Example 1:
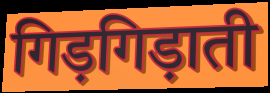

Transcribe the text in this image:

गिड़गिड़ाती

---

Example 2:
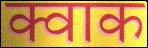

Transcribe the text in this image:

क्वाक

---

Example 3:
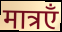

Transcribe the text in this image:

मात्रएँ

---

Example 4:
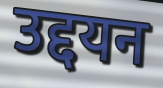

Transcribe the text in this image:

उद्दयन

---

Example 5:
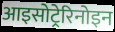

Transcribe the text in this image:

आइसोट्रेरिनोइन